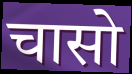
चासो